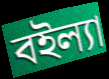
বইল্যা